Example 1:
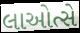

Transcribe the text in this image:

લાઓત્સે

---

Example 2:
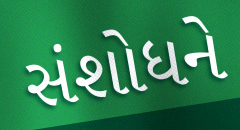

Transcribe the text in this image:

સંશોધને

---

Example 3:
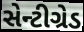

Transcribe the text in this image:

સેન્ટીગ્રેડ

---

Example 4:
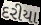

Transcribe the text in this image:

દરીયા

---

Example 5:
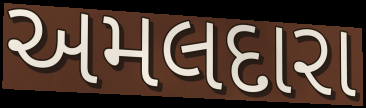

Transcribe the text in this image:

અમલદારા